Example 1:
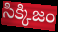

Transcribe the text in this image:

సిక్కిజం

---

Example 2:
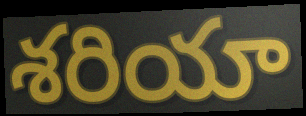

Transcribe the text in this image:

శరియా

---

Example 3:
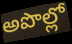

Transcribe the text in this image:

అపొల్లో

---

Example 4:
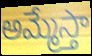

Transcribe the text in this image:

అమ్మేస్తా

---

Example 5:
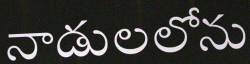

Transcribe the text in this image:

నాడులలోను